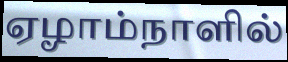
ஏழாம்நாளில்